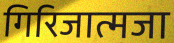
गिरिजात्मजा